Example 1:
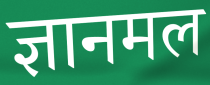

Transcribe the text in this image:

ज्ञानमल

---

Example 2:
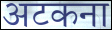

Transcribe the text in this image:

अटकना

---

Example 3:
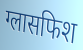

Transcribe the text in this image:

ग्लासफिश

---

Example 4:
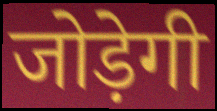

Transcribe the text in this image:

जोड़ेगी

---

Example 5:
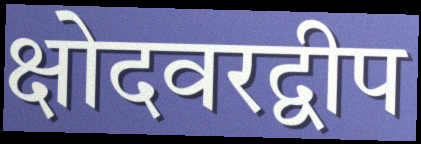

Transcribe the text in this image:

क्षोदवरद्वीप